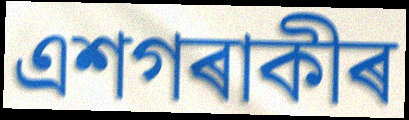
এশগৰাকীৰ